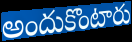
అందుకొంటారు